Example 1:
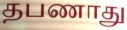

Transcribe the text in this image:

தபணாது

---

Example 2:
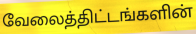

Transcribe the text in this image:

வேலைத்திட்டங்களின்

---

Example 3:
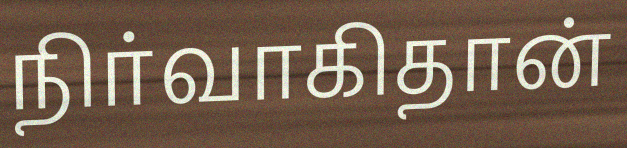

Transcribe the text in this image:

நிர்வாகிதான்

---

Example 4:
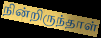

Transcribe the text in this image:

நின்றிருந்தாள்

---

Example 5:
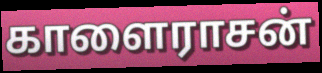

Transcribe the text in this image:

காளைராசன்